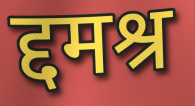
द्दमश्र